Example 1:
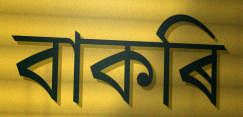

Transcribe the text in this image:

বাকৰি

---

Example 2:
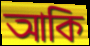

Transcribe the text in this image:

আকি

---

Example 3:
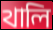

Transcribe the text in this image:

থালি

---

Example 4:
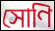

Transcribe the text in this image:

সোণি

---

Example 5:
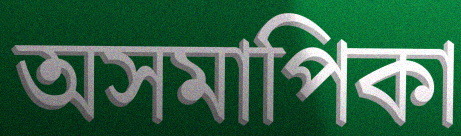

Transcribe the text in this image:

অসমাপিকা